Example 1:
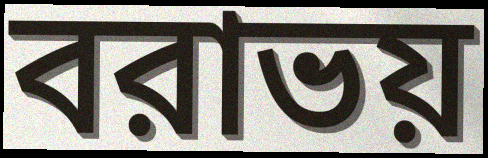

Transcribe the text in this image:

বরাভয়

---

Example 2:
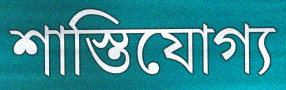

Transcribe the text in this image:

শাস্তিযোগ্য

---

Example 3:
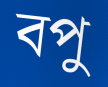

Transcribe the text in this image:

বপু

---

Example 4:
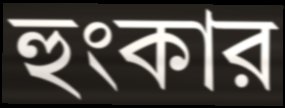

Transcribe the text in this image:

হুংকার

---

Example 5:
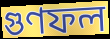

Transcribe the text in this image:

গুণফল